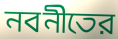
নবনীতের